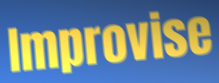
Improvise